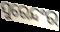
ସୁରେନ୍ଦଂର